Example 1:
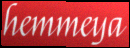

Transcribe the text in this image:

hemmeya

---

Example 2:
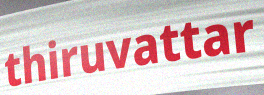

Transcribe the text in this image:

thiruvattar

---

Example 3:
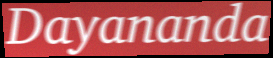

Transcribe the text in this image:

Dayananda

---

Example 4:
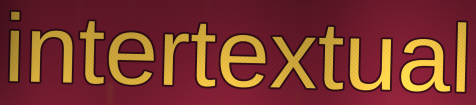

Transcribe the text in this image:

intertextual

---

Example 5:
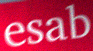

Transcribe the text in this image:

esab